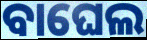
ବାଘେଲ